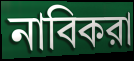
নাবিকরা